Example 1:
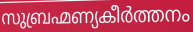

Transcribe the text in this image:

സുബ്രഹ്മണ്യകീർത്തനം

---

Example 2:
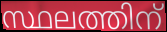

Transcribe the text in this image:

സ്ഥലത്തിന്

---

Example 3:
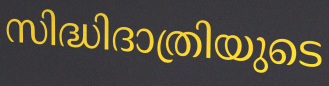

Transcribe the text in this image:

സിദ്ധിദാത്രിയുടെ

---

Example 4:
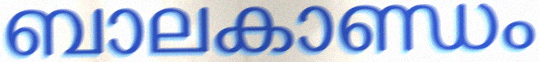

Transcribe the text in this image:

ബാലകാണ്ഡം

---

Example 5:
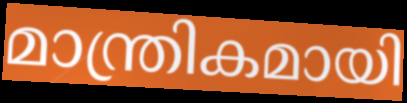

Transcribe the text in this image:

മാന്ത്രികമായി